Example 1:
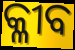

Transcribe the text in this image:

କ୍ଳୀବ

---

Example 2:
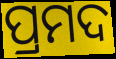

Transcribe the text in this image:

ପ୍ରମଦ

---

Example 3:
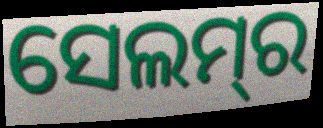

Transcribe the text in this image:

ସେଲମ୍‌ର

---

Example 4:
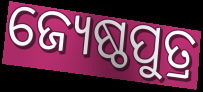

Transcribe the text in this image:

ଜ୍ୟେଷ୍ଠପୁତ୍ର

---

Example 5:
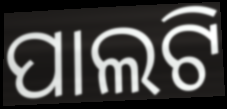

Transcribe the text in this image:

ପାଲଟି